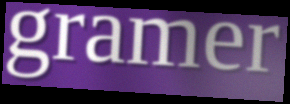
gramer